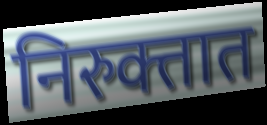
निरुक्तात